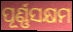
ପୂର୍ଣ୍ଣସକ୍ଷମ